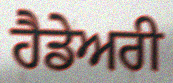
ਹੈਡੇਅਰੀ